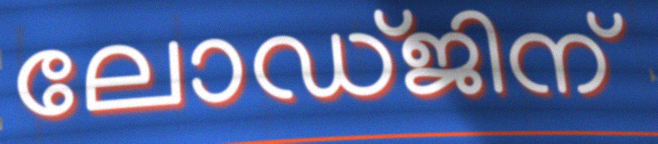
ലോഡ്ജിന്